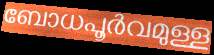
ബോധപൂർവമുള്ള